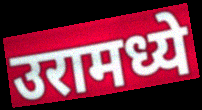
उरामध्ये